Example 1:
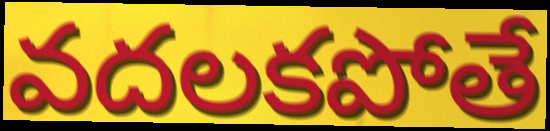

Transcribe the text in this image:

వదలకపోతే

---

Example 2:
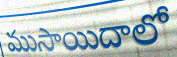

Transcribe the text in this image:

ముసాయిదాలో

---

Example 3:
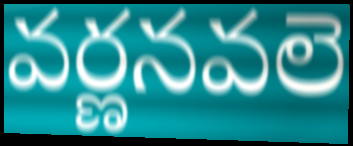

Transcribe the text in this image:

వర్ణనవలె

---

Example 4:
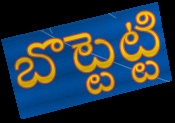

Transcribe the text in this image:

బొట్టెట్టి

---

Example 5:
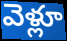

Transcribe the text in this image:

వెళ్లూ